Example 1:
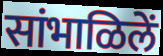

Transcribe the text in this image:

सांभाळिलें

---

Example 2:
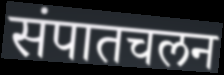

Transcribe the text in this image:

संपातचलन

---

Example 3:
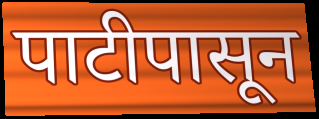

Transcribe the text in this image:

पाटीपासून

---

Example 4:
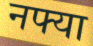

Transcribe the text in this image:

नफ्या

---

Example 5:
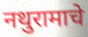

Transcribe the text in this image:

नथुरामाचे